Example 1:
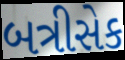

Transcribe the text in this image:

બત્રીસેક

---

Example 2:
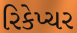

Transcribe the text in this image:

રિકેપ્ચર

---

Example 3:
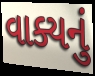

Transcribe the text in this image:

વાક્યનું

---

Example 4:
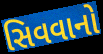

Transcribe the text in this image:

સિવવાનો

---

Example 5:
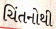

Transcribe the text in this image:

ચિંતનોથી